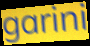
garini